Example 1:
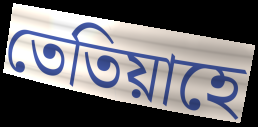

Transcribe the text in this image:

তেতিয়াহে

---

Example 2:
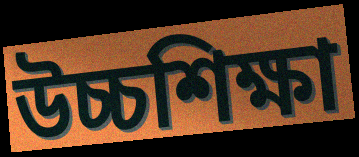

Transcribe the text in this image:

উচ্চশিক্ষা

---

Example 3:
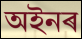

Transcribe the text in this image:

অইনৰ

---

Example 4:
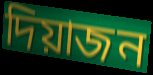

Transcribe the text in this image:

দিয়াজন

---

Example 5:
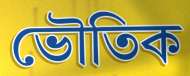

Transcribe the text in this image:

ভৌতিক